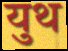
युथ